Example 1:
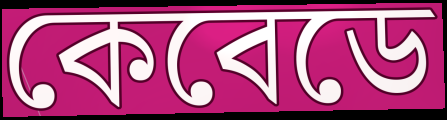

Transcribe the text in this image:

কেবেডে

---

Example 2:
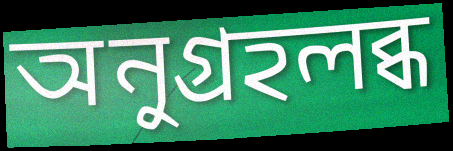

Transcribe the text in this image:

অনুগ্রহলব্ধ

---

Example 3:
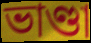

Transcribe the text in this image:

ভাণ্ডা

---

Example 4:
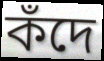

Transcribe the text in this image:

কঁদে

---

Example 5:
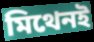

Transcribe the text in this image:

মিথেনই